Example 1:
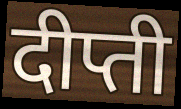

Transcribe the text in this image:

दीप्ती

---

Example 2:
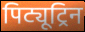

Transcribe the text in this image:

पिट्यूट्रिन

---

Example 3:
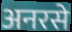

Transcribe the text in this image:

अनरसे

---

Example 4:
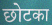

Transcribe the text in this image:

छोटका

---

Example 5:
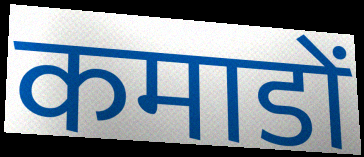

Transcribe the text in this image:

कमाडों